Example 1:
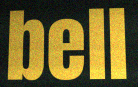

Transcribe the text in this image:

bell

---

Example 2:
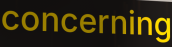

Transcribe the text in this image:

concerning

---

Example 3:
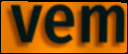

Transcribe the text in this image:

vem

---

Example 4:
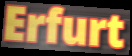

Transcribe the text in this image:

Erfurt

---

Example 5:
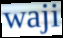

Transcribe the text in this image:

waji